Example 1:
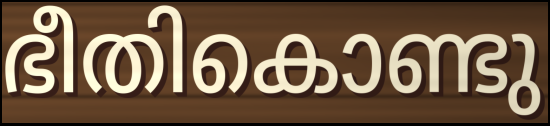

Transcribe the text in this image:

ഭീതികൊണ്ടു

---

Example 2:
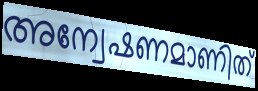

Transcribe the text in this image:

അന്വേഷണമാണിത്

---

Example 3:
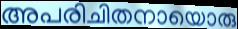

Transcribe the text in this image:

അപരിചിതനായൊരു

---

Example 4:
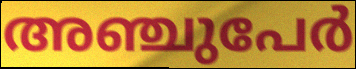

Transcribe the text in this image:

അഞ്ചുപേർ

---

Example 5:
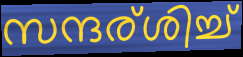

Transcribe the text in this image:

സന്ദര്ശിച്ച്